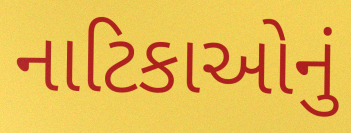
નાટિકાઓનું